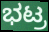
ಭಟ್ರ